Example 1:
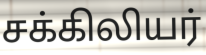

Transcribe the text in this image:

சக்கிலியர்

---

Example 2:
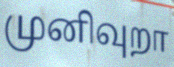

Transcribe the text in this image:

முனிவுறா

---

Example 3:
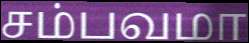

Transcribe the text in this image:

சம்பவமா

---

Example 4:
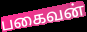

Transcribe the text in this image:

பகைவன்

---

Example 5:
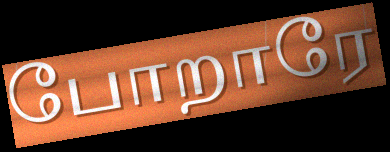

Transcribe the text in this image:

போறாரே